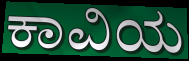
ಕಾವಿಯ